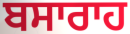
ਬਸਾਰਾਹ